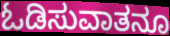
ಓಡಿಸುವಾತನೂ